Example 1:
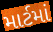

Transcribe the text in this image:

માર્ટમાં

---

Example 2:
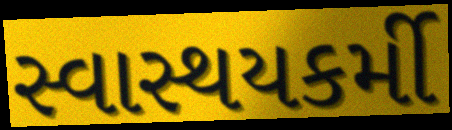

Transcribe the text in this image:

સ્વાસ્થયકર્મી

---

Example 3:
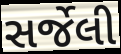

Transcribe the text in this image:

સર્જેલી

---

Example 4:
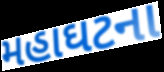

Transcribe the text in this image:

મહાઘટના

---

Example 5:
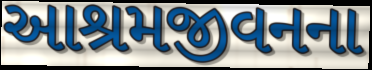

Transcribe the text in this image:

આશ્રમજીવનના